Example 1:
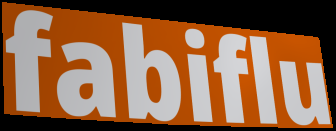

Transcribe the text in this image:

fabiflu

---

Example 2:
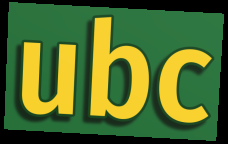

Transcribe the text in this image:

ubc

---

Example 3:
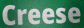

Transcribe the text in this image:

Creese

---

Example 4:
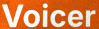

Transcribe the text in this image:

Voicer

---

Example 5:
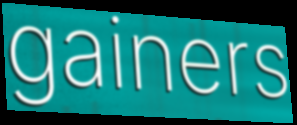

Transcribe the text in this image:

gainers